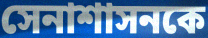
সেনাশাসনকে